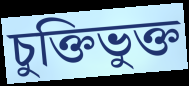
চুক্তিভুক্ত